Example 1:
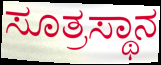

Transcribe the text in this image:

ಸೂತ್ರಸ್ಥಾನ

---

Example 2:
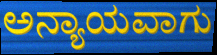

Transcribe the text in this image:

ಅನ್ಯಾಯವಾಗು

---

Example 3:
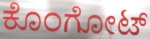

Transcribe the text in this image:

ಕೊಂಗೋಟ್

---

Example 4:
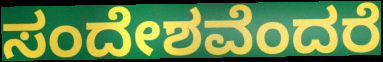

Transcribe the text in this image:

ಸಂದೇಶವೆಂದರೆ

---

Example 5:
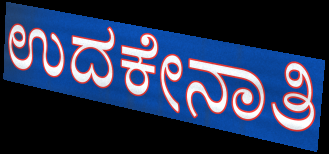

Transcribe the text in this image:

ಉದಕೇನಾತಿ